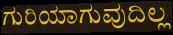
ಗುರಿಯಾಗುವುದಿಲ್ಲ